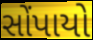
સોંપાયો